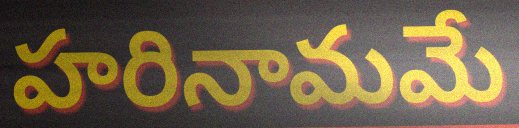
హరినామమే